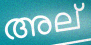
അല്